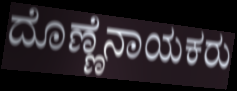
ದೊಣ್ಣೆನಾಯಕರು